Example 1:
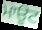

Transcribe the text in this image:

ਮਾਊਟ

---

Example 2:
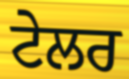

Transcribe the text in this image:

ਟੇਲਰ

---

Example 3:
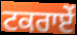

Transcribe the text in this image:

ਟਕਰਾਏਂ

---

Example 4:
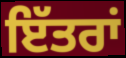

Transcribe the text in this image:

ਇੱਤਰਾਂ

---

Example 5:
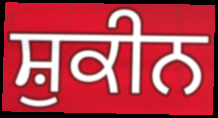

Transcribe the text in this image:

ਸ਼ੁਕੀਨ